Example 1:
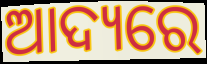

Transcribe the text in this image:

ଆଦ୍ୟରେ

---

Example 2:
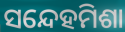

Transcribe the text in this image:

ସନ୍ଦେହମିଶା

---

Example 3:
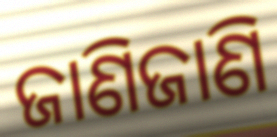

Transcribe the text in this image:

ଜାଣିଜାଣି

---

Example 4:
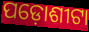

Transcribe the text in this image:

ପଡ଼ୋଶୀଟା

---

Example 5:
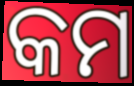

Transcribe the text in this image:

କମ